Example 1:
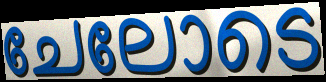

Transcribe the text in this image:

ചേലോടെ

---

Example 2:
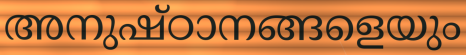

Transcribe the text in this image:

അനുഷ്ഠാനങ്ങളെയും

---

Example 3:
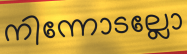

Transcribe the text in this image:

നിന്നോടല്ലോ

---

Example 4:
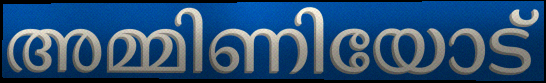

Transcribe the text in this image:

അമ്മിണിയോട്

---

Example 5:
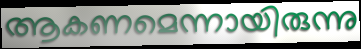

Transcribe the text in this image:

ആകണമെന്നായിരുന്നു